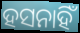
ହସନାହିଁ